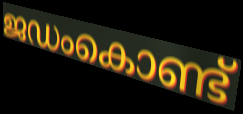
ജഡംകൊണ്ട്